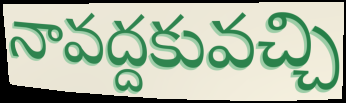
నావద్దకువచ్చి